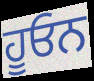
ਹੂਓਨ